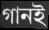
গানই